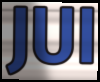
JUI